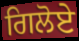
ਗਿਲੋਏ